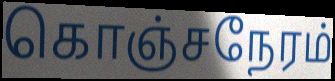
கொஞ்சநேரம்